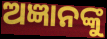
ଅଜ୍ଞାନଙ୍କୁ